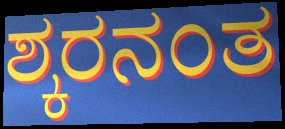
ಶ್ಕರನಂತ